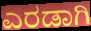
ಎರಡಾಗಿ